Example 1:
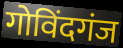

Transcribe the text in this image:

गोविंदगंज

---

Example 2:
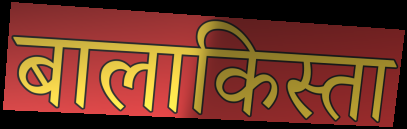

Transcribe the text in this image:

बालाकिस्ता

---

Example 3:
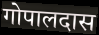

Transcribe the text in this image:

गोपालदास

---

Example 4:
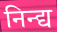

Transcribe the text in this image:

निन्द्य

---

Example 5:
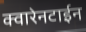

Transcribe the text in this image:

क्वारेनटाईन